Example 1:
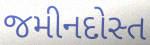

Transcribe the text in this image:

જમીનદોસ્ત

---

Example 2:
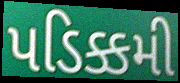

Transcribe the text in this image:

પડિક્કમી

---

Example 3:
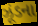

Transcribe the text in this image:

ઝૂંડના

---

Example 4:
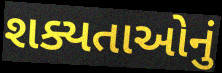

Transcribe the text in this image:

શક્યતાઓનું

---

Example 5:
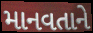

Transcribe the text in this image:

માનવતાને